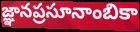
జ్ఞానప్రసూనాంబికా